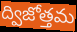
ద్విజోత్తమ